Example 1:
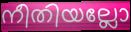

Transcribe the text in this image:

നീതിയല്ലോ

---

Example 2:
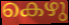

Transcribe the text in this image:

കെഴു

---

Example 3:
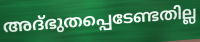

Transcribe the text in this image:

അദ്ഭുതപ്പെടേണ്ടതില്ല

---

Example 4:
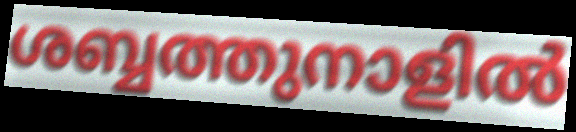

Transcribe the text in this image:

ശബ്ബത്തുനാളിൽ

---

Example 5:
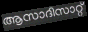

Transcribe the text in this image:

ആസാദിസാറ്റ്